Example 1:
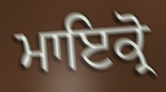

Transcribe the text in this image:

ਮਾਇਕ੍ਰੋ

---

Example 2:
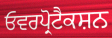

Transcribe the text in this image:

ਓਵਰਪ੍ਰੋਟੈਕਸ਼ਨ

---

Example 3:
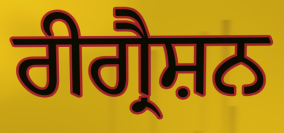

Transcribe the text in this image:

ਰੀਗ੍ਰੈਸ਼ਨ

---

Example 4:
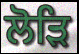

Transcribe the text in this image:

ਲੋੜਿ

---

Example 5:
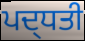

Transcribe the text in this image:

ਪਦ੍ਧਤੀ